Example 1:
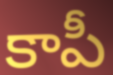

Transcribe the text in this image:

కాపీ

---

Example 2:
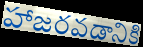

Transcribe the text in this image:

హాజరవడానికి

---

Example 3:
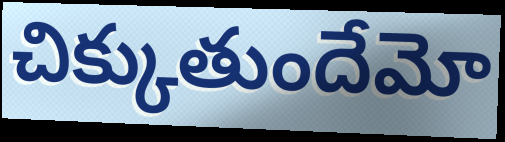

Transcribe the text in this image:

చిక్కుతుందేమో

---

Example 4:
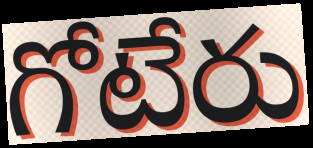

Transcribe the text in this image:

గోటేరు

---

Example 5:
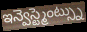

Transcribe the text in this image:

ఇన్వెస్ట్మెంట్స్ను